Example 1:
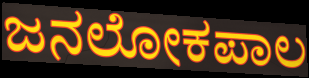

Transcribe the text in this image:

ಜನಲೋಕಪಾಲ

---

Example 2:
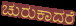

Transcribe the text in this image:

ಚುರುಕಾದರೆ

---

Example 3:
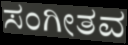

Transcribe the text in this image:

ಸಂಗೀತವ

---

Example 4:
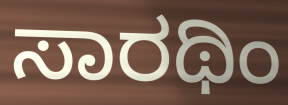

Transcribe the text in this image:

ಸಾರಥಿಂ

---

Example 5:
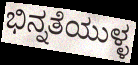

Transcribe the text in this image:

ಭಿನ್ನತೆಯುಳ್ಳ